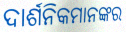
ଦାର୍ଶନିକମାନଙ୍କର